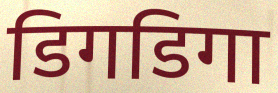
डिगडिगा